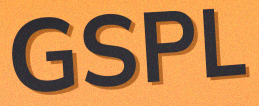
GSPL